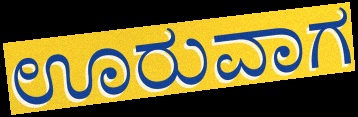
ಊರುವಾಗ